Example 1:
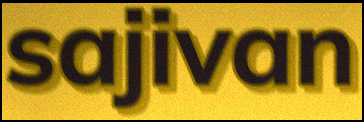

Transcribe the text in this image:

sajivan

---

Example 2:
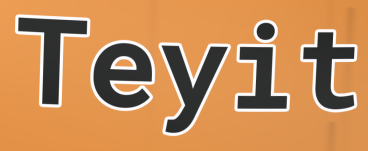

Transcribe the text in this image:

Teyit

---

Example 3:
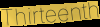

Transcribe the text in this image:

Thirteenth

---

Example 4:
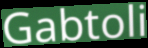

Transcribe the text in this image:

Gabtoli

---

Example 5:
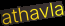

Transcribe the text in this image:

athavla